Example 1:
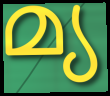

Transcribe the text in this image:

മ്യ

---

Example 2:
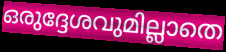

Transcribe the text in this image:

ഒരുദ്ദേശവുമില്ലാതെ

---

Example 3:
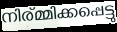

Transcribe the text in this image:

നിര്മ്മിക്കപ്പെട്ടു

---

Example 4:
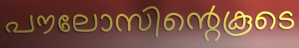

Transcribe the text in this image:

പൗലോസിന്റെകൂടെ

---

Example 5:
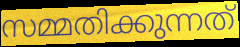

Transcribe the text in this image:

സമ്മതിക്കുന്നത്